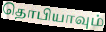
தொபியாவும்